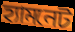
হ্যামনেট